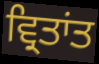
ਵ੍ਰਿਤਾਂਤ